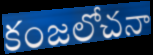
కంజలోచనా